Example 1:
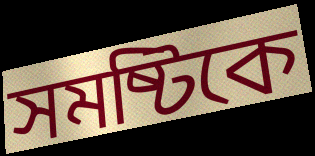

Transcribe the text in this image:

সমষ্টিকে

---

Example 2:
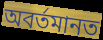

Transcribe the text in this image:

অবৰ্তমানত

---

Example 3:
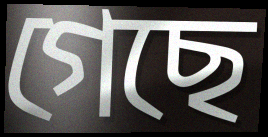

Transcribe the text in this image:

গেছে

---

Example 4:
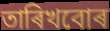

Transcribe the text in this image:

তাৰিখবোৰ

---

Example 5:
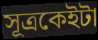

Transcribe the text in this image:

সূত্ৰকেইটা